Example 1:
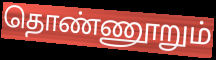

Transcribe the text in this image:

தொண்ணூறும்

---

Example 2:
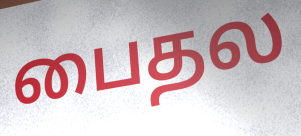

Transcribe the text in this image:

பைதல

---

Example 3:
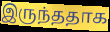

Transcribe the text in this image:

இருந்ததாக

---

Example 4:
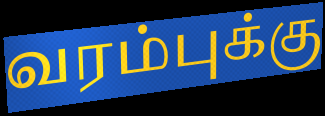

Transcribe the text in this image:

வரம்புக்கு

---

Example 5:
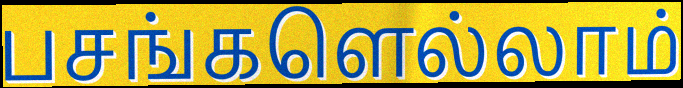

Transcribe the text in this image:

பசங்களெல்லாம்